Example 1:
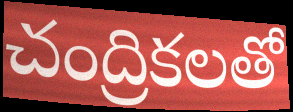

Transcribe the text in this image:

చంద్రికలతో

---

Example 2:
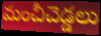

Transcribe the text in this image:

మంచీచెడ్డలు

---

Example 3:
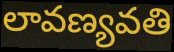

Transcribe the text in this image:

లావణ్యవతి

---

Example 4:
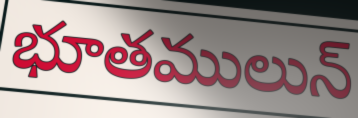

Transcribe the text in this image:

భూతములున్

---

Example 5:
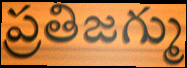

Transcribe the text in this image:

ప్రతిజగ్ము